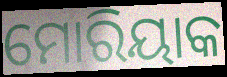
ମୋରିୟାକ